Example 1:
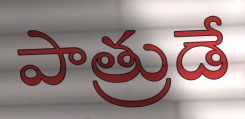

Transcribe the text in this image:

పాత్రుడే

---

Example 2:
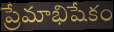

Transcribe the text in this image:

ప్రేమాభిషేకం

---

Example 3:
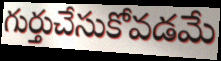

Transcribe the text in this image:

గుర్తుచేసుకోవడమే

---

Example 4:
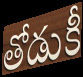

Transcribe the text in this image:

తోడుకీ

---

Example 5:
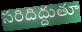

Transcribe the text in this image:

సరిదిద్దుతూ